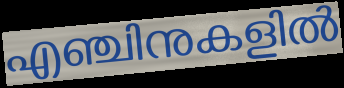
എഞ്ചിനുകളിൽ